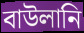
বাউলানি